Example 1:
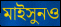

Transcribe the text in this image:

মাইসুনও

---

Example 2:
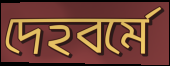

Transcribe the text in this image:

দেহবর্মে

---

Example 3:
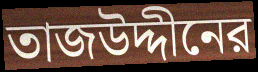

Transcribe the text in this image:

তাজউদ্দীনের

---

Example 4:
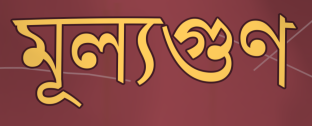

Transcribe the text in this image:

মূল্যগুণ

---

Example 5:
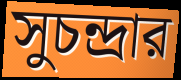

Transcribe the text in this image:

সুচন্দ্রার